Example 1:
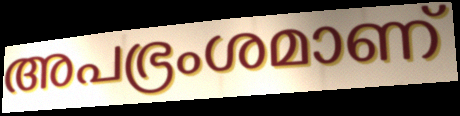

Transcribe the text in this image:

അപഭ്രംശമാണ്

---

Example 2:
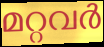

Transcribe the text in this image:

മറ്റവർ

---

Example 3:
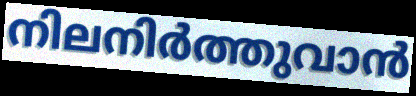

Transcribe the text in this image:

നിലനിർത്തുവാൻ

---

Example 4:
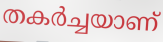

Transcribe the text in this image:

തകർച്ചയാണ്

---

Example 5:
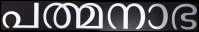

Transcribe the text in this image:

പത്മനാഭ